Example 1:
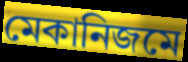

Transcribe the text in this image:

মেকানিজমে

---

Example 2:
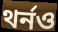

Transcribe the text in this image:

থর্নও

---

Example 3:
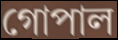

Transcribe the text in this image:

গোপাল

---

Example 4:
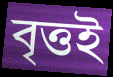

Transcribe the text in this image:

বৃত্তই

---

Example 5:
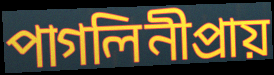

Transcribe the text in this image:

পাগলিনীপ্রায়